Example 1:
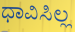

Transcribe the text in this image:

ಧಾವಿಸಿಲ್ಲ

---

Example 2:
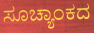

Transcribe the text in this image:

ಸೂಚ್ಯಾಂಕದ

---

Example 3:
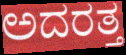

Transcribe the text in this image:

ಅದರತ್ತ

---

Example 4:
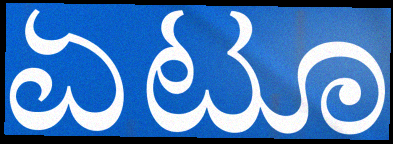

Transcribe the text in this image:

ಏಟೂ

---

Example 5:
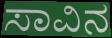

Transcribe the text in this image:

ಸಾವಿನ